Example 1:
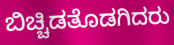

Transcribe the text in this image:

ಬಿಚ್ಚಿಡತೊಡಗಿದರು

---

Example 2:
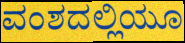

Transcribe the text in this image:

ವಂಶದಲ್ಲಿಯೂ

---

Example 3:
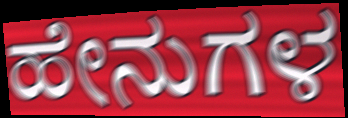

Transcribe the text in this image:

ಹೇನುಗಳ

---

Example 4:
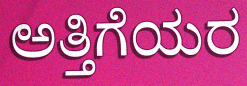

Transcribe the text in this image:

ಅತ್ತಿಗೆಯರ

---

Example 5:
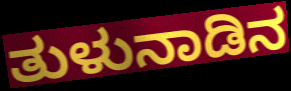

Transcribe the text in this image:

ತುಳುನಾಡಿನ